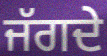
ਜੱਗਦੇ